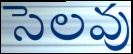
సెలవు